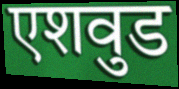
एशवुड